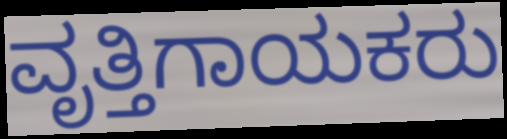
ವೃತ್ತಿಗಾಯಕರು